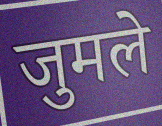
जुमले